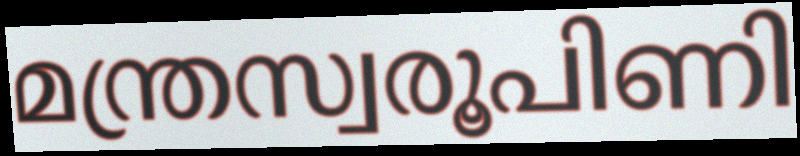
മന്ത്രസ്വരൂപിണി